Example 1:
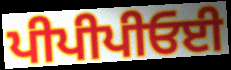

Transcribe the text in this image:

ਪੀਪੀਪੀਓਈ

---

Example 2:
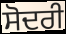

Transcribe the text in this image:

ਸੋਦਰੀ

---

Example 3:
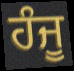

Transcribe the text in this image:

ਹੰਜੂ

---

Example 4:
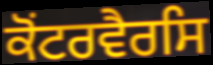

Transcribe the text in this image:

ਕੋਂਟਰਵੈਰਸਿ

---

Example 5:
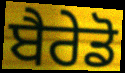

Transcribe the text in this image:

ਬੈਰੇਡੋ